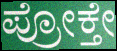
ಪ್ರೋಕ್ತೇ